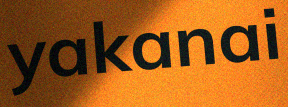
yakanai